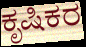
ಕೃಷಿಕರ